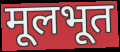
मूलभूत